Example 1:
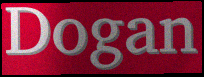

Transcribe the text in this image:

Dogan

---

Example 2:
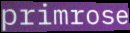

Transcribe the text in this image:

primrose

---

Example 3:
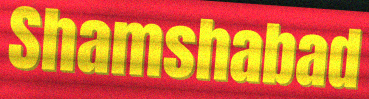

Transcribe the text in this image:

Shamshabad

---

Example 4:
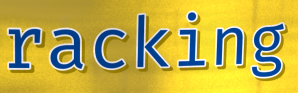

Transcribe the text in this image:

racking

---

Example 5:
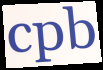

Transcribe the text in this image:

cpb